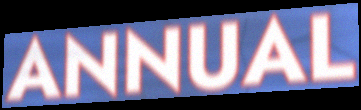
ANNUAL